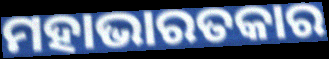
ମହାଭାରତକାର